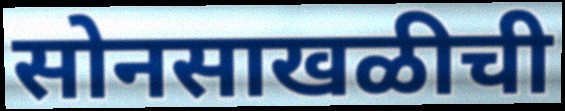
सोनसाखळीची